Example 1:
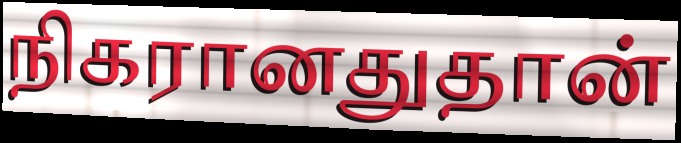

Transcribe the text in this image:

நிகரானதுதான்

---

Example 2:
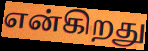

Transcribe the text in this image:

என்கிறது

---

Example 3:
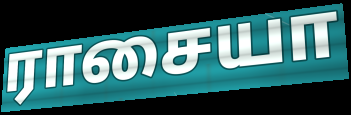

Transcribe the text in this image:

ராசையா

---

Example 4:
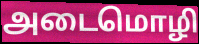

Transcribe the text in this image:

அடைமொழி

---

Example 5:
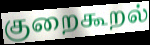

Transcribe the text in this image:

குறைகூறல்